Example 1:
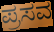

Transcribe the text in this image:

ಪ್ರಸವ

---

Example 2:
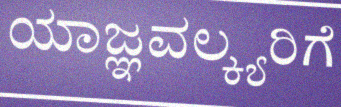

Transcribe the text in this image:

ಯಾಜ್ಞವಲ್ಕ್ಯರಿಗೆ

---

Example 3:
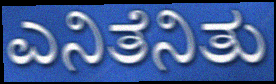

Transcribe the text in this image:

ಎನಿತೆನಿತು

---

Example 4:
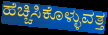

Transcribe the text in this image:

ಹೆಚ್ಚಿಸಿಕೊಳ್ಳುವತ್ತ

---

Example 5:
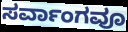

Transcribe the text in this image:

ಸರ್ವಾಂಗವೂ